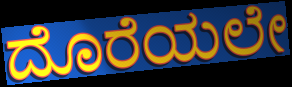
ದೊರೆಯಲೇ